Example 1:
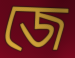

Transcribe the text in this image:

জে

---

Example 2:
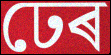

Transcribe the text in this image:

ঢেৰ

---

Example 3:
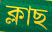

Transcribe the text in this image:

ক্লাছ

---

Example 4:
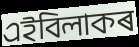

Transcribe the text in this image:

এইবিলাকৰ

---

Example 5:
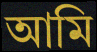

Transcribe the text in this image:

আমি